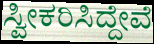
ಸ್ವೀಕರಿಸಿದ್ದೇವೆ